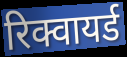
रिक्वायर्ड